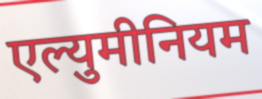
एल्युमीनियम